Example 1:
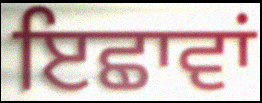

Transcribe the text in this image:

ਇਛਾਵਾਂ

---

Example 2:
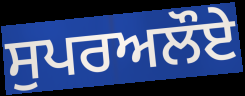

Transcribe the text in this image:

ਸੁਪਰਅਲੌਏ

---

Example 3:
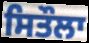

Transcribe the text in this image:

ਸਿਤੌਲਾ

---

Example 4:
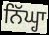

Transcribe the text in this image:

ਨਿੱਘ੍ਹਾ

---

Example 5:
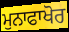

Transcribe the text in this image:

ਮੁਨਾਫਾਖੋਰ